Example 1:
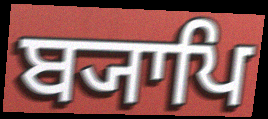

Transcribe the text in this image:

ਬ੍ਯਾਪਿ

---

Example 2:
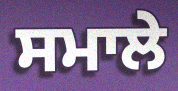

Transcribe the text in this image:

ਸਮਾਲੇ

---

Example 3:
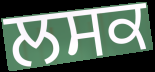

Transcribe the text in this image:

ਲਸਕ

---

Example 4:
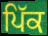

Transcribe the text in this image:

ਪਿੱਕ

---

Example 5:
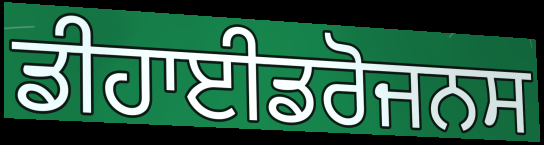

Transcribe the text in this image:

ਡੀਹਾਈਡਰੋਜਨਸ